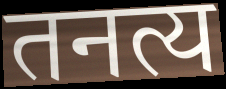
तनत्य